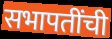
सभापतींची